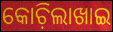
କୋଚ଼ିଲାଖାଇ